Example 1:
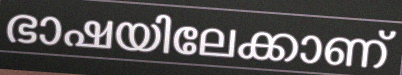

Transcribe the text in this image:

ഭാഷയിലേക്കാണ്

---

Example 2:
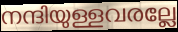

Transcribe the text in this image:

നന്ദിയുള്ളവരല്ലേ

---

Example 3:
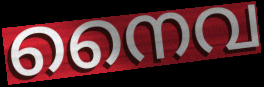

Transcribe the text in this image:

നൈവ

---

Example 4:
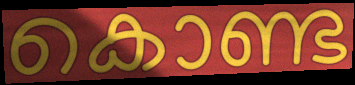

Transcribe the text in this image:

കൊണ്ട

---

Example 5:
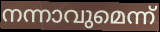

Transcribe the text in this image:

നന്നാവുമെന്ന്